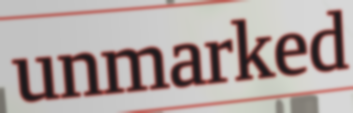
unmarked